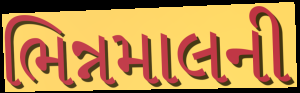
ભિન્નમાલની